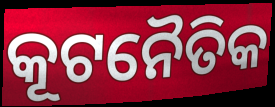
କୂଟନୈତିକ